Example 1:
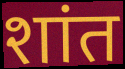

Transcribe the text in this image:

शांत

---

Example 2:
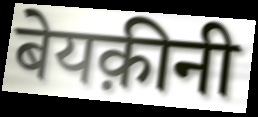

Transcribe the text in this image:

बेयक़ीनी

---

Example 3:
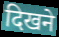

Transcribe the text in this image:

दिखने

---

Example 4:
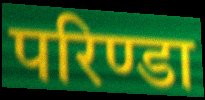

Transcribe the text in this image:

परिण्डा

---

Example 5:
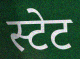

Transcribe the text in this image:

स्टेट